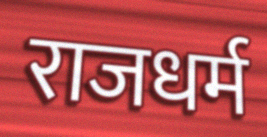
राजधर्म